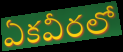
ఏకవీరలో